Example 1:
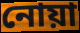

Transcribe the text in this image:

নোয়া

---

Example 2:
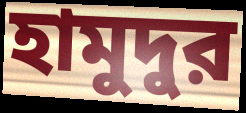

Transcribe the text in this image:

হামুদুর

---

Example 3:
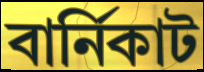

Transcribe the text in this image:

বার্নিকাট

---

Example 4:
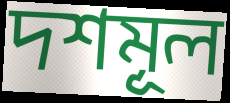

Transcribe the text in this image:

দশমূল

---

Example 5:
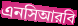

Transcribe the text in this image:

এনসিআরবি